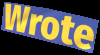
Wrote